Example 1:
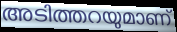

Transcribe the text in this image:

അടിത്തറയുമാണ്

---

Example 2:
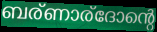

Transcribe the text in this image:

ബര്ണാര്ദോന്റെ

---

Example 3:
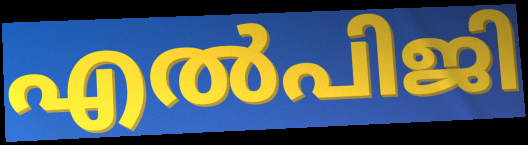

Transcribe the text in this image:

എൽപിജി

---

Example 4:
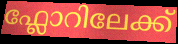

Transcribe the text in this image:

ഫ്ലോറിലേക്ക്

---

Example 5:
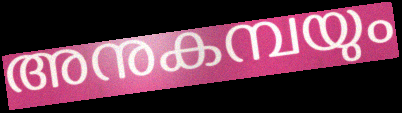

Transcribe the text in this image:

അനുകമ്പയും